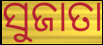
ସୁଜାତା